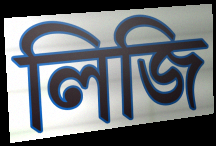
লিজি